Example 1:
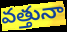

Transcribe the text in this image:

వత్తునా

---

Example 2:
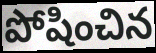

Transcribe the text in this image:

పోషించిన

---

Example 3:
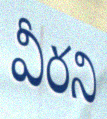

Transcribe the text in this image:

వీరని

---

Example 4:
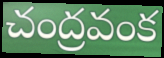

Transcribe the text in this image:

చంద్రవంక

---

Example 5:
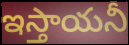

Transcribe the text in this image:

ఇస్తాయనీ